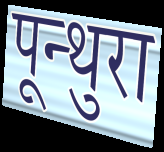
पून्थुरा